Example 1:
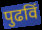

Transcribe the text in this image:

पुढविं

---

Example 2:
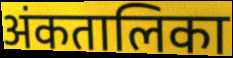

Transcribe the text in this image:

अंकतालिका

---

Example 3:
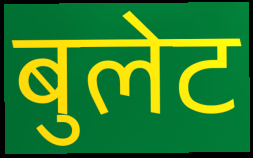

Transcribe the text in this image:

बुलेट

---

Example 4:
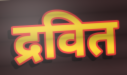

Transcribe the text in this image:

द्रवित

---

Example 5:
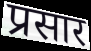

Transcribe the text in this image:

प्रसार